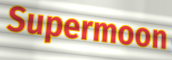
Supermoon